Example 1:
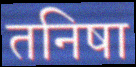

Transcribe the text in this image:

तनिषा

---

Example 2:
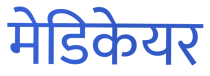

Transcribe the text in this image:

मेडिकेयर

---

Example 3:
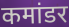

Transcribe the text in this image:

कमांडर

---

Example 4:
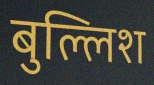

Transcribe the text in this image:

बुल्लिश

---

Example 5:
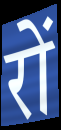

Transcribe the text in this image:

रों